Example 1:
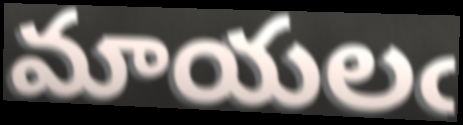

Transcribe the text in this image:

మాయలఁ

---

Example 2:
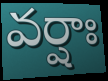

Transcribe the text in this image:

వర్షాః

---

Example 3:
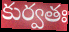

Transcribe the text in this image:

కుర్వతః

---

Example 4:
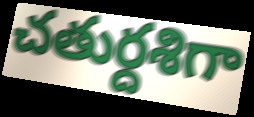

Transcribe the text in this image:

చతుర్దశిగా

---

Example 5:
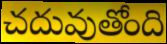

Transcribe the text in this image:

చదువుతోంది